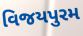
વિજયપુરમ